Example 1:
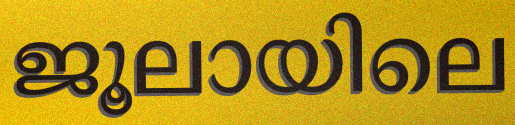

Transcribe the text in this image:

ജൂലായിലെ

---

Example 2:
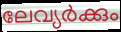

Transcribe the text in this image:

ലേവ്യർക്കും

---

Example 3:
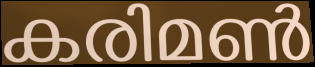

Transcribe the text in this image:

കരിമൺ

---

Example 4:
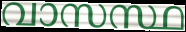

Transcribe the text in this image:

വാസസ്ഥ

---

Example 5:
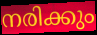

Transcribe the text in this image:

നരിക്കും